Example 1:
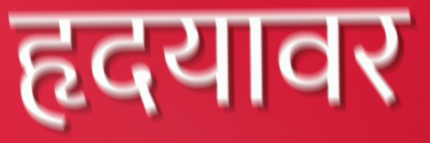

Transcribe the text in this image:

हृदयावर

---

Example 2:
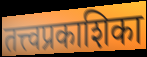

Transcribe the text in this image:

तत्त्वप्रकाशिका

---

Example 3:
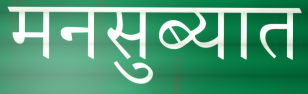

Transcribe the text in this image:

मनसुब्यात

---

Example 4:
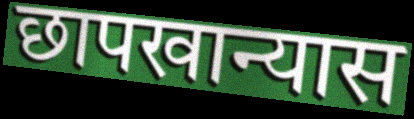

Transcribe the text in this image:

छापखान्यास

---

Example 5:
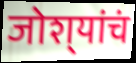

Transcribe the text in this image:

जोश्यांचं